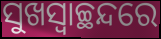
ସୁଖସ୍ୱାଚ୍ଛନ୍ଦରେ